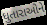
ધુતારાઓને